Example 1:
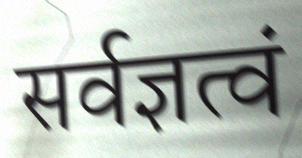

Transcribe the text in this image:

सर्वज्ञत्वं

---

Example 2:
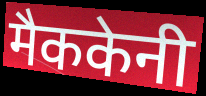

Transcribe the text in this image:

मैककेनी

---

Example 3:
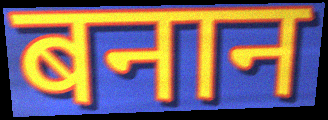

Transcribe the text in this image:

बनान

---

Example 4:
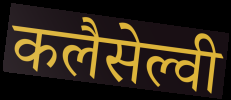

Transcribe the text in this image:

कलैसेल्वी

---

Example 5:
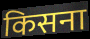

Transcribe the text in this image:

किसना